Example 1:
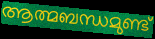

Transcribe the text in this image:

ആത്മബന്ധമുണ്ട്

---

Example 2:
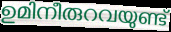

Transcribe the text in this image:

ഉമിനീരുറവയുണ്ട്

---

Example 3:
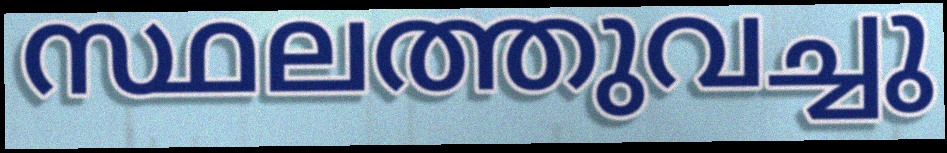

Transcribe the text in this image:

സ്ഥലത്തുവച്ചു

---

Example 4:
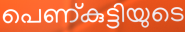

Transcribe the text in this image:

പെണ്കുട്ടിയുടെ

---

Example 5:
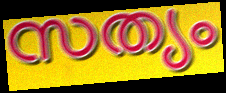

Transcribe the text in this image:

സത്യം